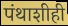
पंथाशीही